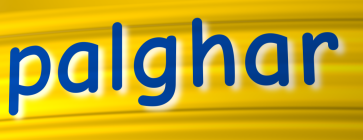
palghar